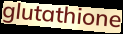
glutathione